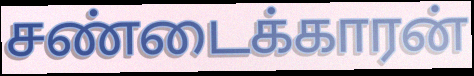
சண்டைக்காரன்